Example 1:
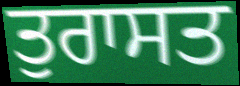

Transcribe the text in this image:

ਤੁਰਾਸਤ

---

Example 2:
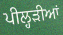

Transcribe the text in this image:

ਪੀਲ੍ਹੜੀਆਂ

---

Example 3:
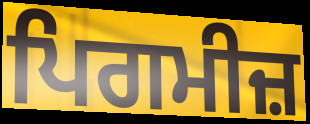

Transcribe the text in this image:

ਪਿਗਮੀਜ਼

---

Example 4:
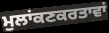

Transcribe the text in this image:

ਮੁਲਾਂਕਣਕਰਤਾਵਾਂ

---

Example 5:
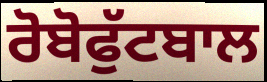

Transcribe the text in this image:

ਰੋਬੋਫੁੱਟਬਾਲ